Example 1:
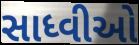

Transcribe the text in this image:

સાધ્વીઓ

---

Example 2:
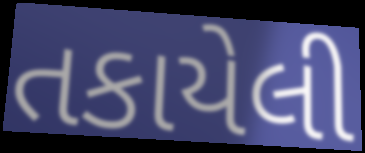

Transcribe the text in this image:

તકાયેલી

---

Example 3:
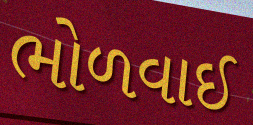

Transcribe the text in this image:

ભોળવાઈ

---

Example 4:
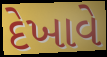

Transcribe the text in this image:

દેખાવે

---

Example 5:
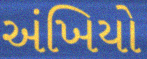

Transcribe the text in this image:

અંખિયો